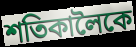
শতিকালৈকে